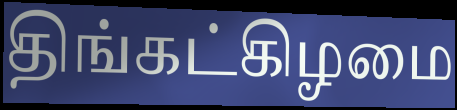
திங்கட்கிழமை